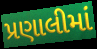
પ્રણાલીમાં